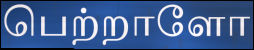
பெற்றாளோ